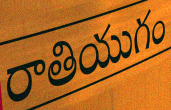
రాతియుగం